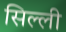
सिल्ली